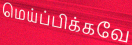
மெய்ப்பிக்கவே